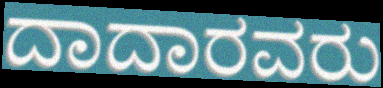
ದಾದಾರವರು